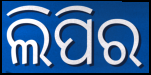
ଲିପିର